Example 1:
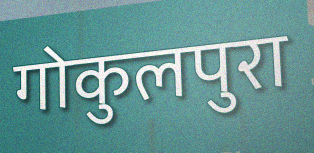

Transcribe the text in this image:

गोकुलपुरा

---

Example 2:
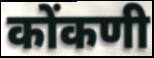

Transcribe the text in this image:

कोंकणी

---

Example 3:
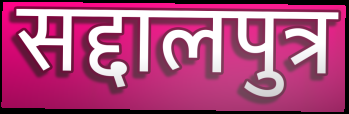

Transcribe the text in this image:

सद्दालपुत्र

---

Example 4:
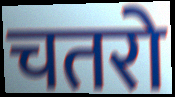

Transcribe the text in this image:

चतरो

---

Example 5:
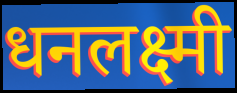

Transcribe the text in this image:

धनलक्ष्मी